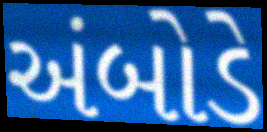
અંબોડે